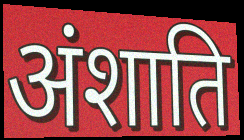
अंशाति